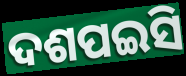
ଦଶପଇସି